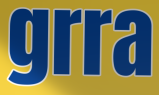
grra